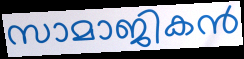
സാമാജികൻ